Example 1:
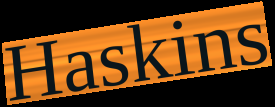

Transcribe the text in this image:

Haskins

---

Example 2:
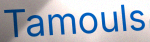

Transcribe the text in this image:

Tamouls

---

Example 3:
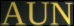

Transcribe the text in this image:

AUN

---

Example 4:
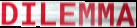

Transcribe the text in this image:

DILEMMA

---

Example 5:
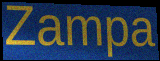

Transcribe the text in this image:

Zampa